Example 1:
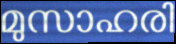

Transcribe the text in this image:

മുസാഹരി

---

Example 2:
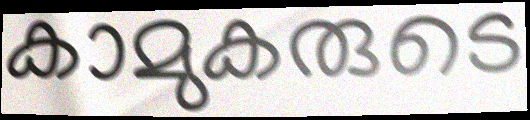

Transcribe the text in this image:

കാമുകരുടെ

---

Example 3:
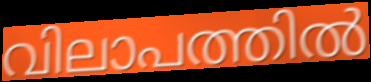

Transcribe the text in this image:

വിലാപത്തിൽ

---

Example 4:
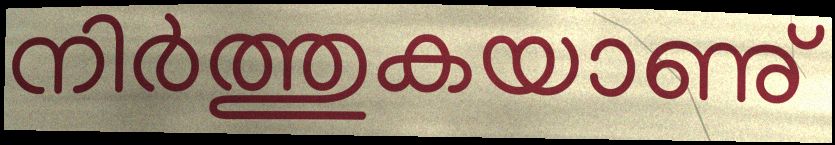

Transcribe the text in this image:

നിർത്തുകയാണു്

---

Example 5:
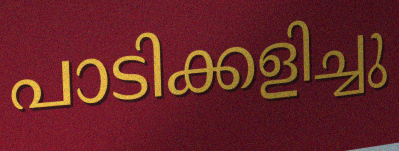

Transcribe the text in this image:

പാടിക്കളിച്ചു